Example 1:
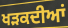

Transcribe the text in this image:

ਖੜਕਦੀਆਂ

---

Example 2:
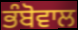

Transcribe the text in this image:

ਭੰਬੋਵਾਲ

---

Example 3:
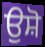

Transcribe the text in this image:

ਉਸ਼ੋ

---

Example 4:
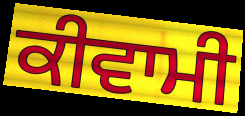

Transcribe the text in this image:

ਕੀਵਾਮੀ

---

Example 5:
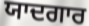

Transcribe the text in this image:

ਯਾਦਗਾਰ